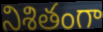
నిశితంగా